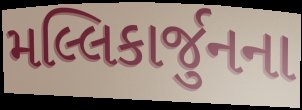
મલ્લિકાર્જુનના